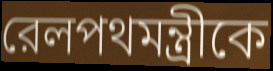
রেলপথমন্ত্রীকে